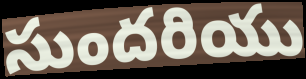
సుందరియు